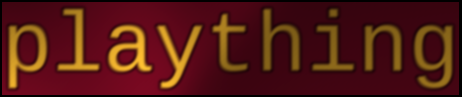
plaything